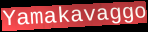
Yamakavaggo